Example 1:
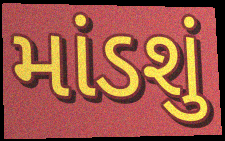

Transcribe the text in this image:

માંડશું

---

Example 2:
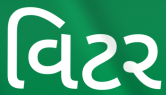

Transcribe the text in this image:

વિટર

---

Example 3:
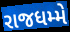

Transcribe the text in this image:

રાજધમ્મે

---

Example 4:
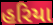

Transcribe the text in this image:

હરિયા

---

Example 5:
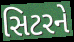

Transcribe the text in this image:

સિટરને